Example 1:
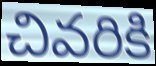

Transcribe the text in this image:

చివరికి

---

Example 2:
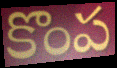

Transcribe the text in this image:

కొంప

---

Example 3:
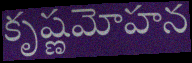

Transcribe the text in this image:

కృష్ణమోహన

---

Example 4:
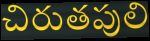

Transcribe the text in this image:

చిరుతపులి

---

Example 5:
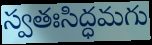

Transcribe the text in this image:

స్వతఃసిద్ధమగు